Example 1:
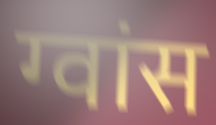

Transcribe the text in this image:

ग्वांस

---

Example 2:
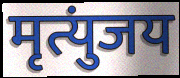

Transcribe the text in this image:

मृत्युंजय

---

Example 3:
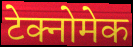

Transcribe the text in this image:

टेक्नोमेक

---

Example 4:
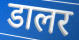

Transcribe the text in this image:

डालर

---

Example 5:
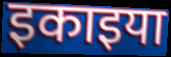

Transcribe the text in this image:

इकाइया